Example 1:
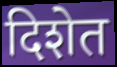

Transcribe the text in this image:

दिशेत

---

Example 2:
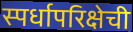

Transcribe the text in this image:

स्पर्धापरिक्षेची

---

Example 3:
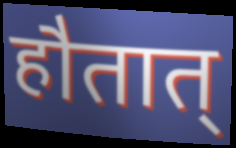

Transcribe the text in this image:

हौतात्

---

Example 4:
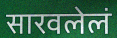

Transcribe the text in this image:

सारवलेलं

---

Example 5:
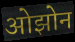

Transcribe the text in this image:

ओझोन